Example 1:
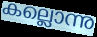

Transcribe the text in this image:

കല്ലൊന്നു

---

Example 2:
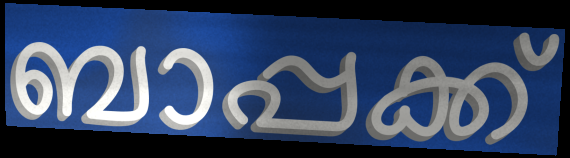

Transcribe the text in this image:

ബാപ്പക്ക്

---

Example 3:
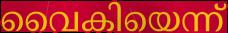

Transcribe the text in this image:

വൈകിയെന്ന്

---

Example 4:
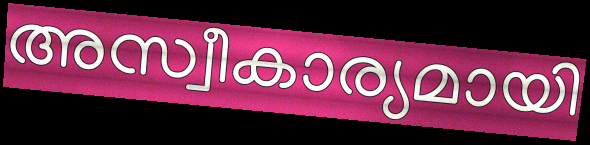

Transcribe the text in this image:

അസ്വീകാര്യമായി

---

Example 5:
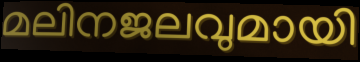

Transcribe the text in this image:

മലിനജലവുമായി